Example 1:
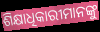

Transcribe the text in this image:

ଶିକ୍ଷାଧିକାରୀମାନଙ୍କୁ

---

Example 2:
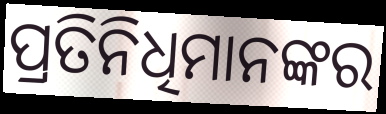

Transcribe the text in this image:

ପ୍ରତିନିଧିମାନଙ୍କର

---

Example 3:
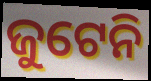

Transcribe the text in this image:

ଜୁଟେନି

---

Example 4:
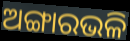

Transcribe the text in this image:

ଅଙ୍ଗାରଭଳି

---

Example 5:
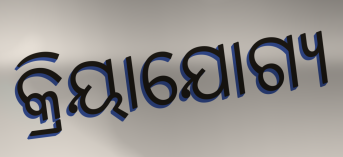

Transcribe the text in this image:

କ୍ରିୟାଯୋଗ୍ୟ